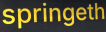
springeth